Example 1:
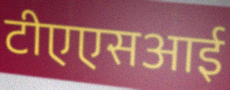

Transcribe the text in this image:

टीएएसआई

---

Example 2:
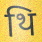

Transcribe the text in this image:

थि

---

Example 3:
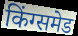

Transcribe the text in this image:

किंग्समेड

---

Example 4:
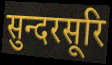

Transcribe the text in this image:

सुन्दरसूरि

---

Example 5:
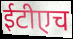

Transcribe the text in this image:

ईटीएच